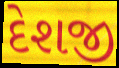
દેશજી